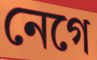
নেগে